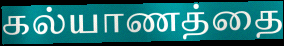
கல்யாணத்தை